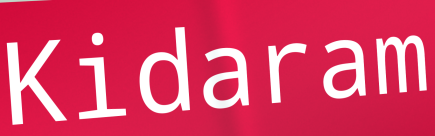
Kidaram